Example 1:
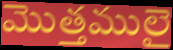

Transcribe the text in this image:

మొత్తములై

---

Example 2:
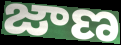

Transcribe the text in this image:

జాణ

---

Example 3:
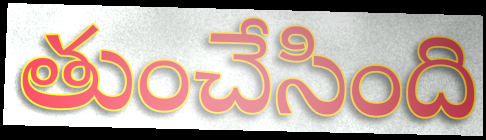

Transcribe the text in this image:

తుంచేసింది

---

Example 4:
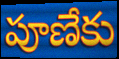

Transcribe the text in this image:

పూణేకు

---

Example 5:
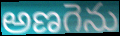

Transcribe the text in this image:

అణగెను